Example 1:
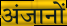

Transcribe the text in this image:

अंजानों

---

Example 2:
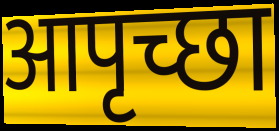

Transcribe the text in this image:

आपृच्छा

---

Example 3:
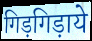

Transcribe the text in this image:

गिड़गिड़ाये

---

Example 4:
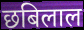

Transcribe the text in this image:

छबिलाल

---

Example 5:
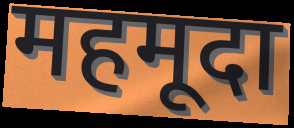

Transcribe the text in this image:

महमूदा